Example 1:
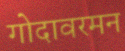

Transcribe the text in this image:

गोदावरमन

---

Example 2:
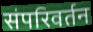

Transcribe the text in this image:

संपरिवर्तन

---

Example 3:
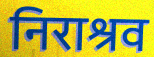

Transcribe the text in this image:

निराश्रव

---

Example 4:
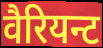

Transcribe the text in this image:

वैरियन्ट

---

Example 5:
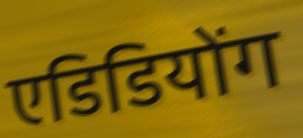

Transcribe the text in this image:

एडिडियोंग